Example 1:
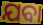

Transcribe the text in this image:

ଯବା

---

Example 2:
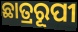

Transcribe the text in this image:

ଛାତ୍ରରୂପୀ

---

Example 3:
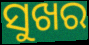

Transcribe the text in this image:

ସୁଖର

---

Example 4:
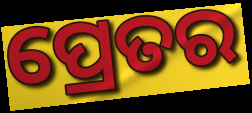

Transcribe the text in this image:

ପ୍ରେତର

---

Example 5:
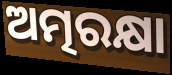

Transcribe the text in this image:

ଅତ୍ମରକ୍ଷା